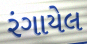
રંગાયેલ